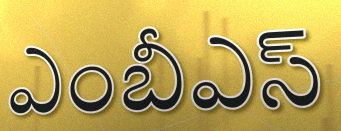
ఎంబీఎస్